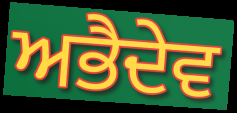
ਅਭੈਦੇਵ